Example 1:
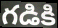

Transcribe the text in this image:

గడికి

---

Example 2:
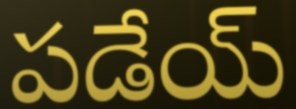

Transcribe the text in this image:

పడేయ్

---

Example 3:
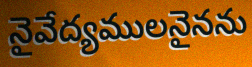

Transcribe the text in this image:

నైవేద్యములనైనను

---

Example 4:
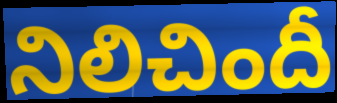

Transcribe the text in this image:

నిలిచిందీ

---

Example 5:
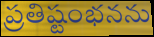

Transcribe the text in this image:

ప్రతిష్టంభనను